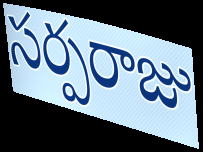
సర్పరాజు